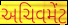
અચિવમેંટ